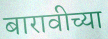
बारावीच्या